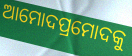
ଆମୋଦପ୍ରମୋଦକୁ